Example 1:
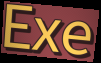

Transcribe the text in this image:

Exe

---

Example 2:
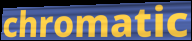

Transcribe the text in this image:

chromatic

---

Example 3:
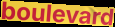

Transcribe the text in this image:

boulevard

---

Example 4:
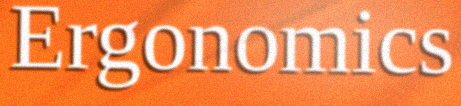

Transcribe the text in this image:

Ergonomics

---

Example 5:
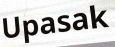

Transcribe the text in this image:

Upasak